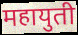
महायुती